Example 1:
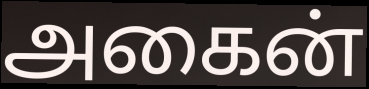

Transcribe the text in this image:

அகைன்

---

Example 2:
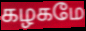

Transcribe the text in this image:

கழகமே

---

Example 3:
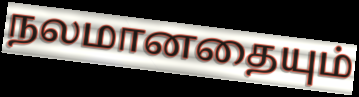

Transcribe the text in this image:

நலமானதையும்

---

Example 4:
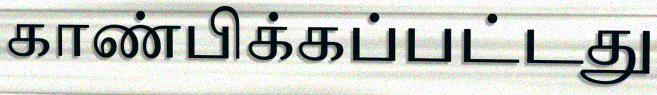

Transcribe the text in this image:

காண்பிக்கப்பட்டது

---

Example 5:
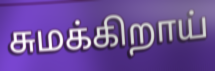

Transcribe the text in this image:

சுமக்கிறாய்